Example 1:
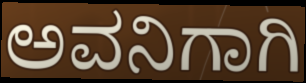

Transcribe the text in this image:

ಅವನಿಗಾಗಿ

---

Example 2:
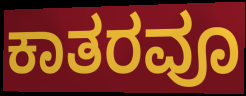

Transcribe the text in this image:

ಕಾತರವೂ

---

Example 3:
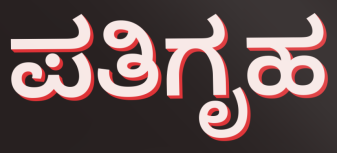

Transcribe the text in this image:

ಪತಿಗೃಹ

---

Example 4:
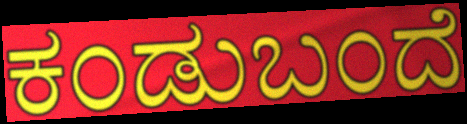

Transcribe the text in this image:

ಕಂಡುಬಂದೆ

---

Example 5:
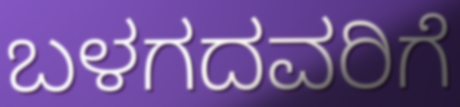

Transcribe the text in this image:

ಬಳಗದವರಿಗೆ